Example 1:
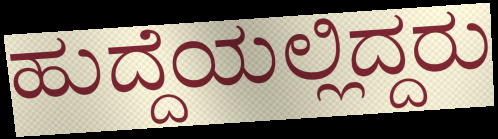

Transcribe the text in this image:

ಹುದ್ದೆಯಲ್ಲಿದ್ದರು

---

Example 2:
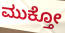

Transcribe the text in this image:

ಮುಕ್ತೋ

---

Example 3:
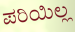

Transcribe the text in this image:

ಪರಿಯಿಲ್ಲ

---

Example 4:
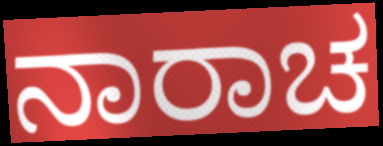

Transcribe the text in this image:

ನಾರಾಚ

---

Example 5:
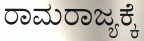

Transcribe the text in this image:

ರಾಮರಾಜ್ಯಕ್ಕೆ